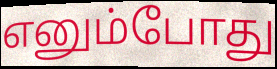
எனும்போது